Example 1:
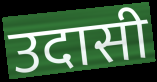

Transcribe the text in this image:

उदासी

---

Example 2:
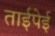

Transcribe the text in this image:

ताईपेई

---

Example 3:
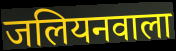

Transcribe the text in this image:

जलियनवाला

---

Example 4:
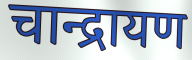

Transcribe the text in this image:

चान्द्रायण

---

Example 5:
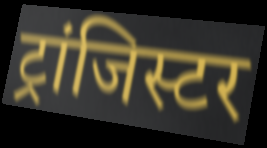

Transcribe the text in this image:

ट्रांजिस्टर